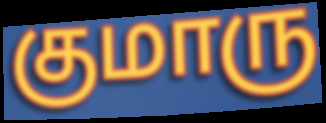
குமாரு